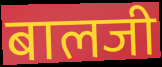
बालजी